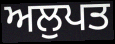
ਅਲੁਪਤ